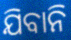
ଯିବାନି